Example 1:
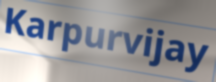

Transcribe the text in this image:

Karpurvijay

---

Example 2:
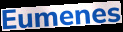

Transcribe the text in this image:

Eumenes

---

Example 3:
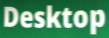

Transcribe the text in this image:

Desktop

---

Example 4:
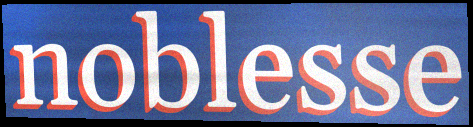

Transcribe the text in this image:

noblesse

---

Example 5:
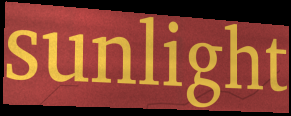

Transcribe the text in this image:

sunlight